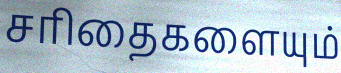
சரிதைகளையும்